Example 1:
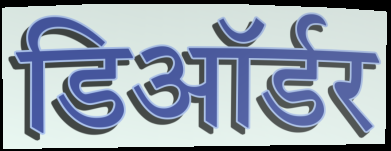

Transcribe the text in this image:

डिऑर्डर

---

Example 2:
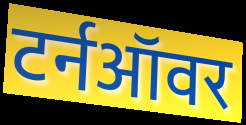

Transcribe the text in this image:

टर्नऑवर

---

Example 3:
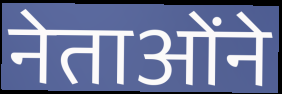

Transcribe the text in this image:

नेताओंने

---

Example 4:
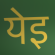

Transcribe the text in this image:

येइ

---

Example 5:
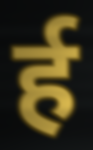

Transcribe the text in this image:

र्ह